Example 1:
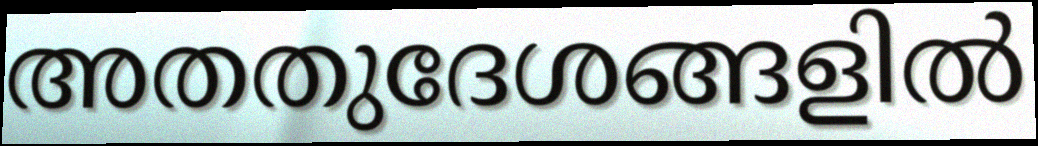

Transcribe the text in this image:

അതതുദേശങ്ങളിൽ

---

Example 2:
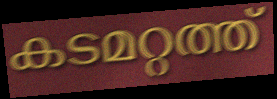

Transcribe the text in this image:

കടമറ്റത്ത്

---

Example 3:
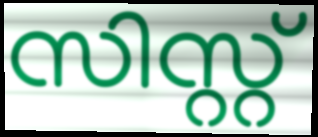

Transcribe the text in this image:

സിസ്റ്റ്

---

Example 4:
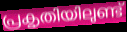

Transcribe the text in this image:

പ്രകൃതിയിലുണ്ട്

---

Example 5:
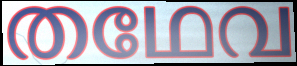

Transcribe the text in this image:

തഥേവ